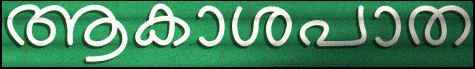
ആകാശപാത